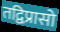
तद्विप्रासो